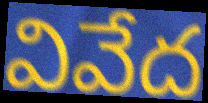
వివేద